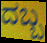
ದಬ್ಬ